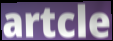
artcle